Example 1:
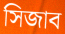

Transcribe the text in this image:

সিজাব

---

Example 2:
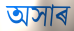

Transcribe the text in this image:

অসাৰ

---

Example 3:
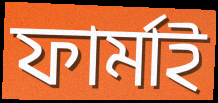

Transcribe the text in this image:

ফাৰ্মাই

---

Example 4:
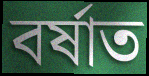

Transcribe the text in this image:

বৰ্ষাত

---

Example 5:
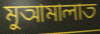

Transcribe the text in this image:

মুআমালাত